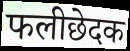
फलीछेदक